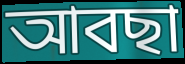
আবছা